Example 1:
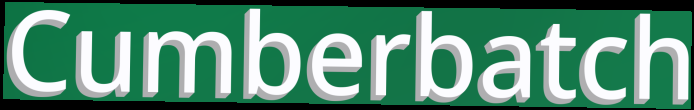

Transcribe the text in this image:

Cumberbatch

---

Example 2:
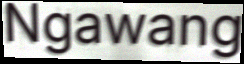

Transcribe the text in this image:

Ngawang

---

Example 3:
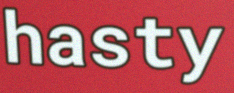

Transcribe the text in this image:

hasty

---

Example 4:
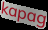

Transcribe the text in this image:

kapag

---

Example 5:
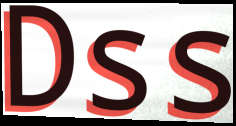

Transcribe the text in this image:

Dss